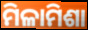
ମିଳାମିଶା